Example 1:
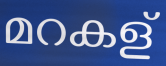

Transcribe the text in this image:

മറകള്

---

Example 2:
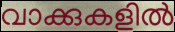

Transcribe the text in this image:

വാക്കുകളിൽ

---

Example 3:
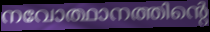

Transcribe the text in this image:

നവോത്ഥാനത്തിന്റെ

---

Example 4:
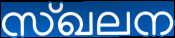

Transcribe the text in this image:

സ്ഖലന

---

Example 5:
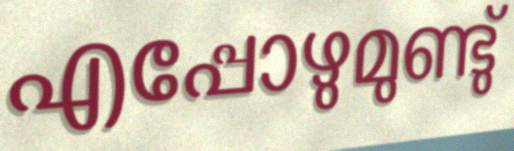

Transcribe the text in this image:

എപ്പോഴുമുണ്ടു്